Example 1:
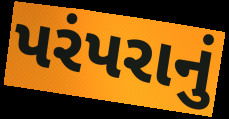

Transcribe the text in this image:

પરંપરાનું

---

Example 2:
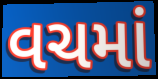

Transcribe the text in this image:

વચમાં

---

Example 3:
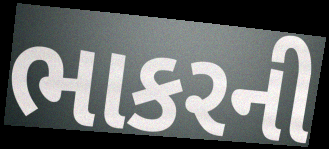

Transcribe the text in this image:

ભાકરની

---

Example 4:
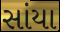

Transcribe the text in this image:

સાંયા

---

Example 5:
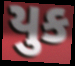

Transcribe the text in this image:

યુક